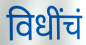
विधींचं